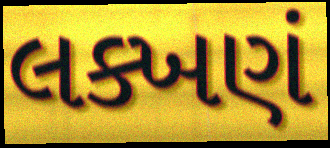
લક્ખણં